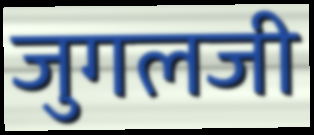
जुगलजी